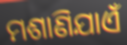
ମଶାଣିଯାଏଁ